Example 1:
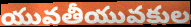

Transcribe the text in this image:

యువతీయువకుల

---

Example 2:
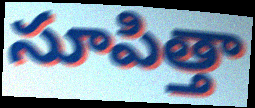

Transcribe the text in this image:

సూపిత్తా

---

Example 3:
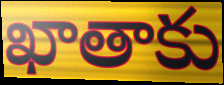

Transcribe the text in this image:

ఖాతాకు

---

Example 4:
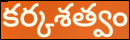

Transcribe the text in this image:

కర్కశత్వం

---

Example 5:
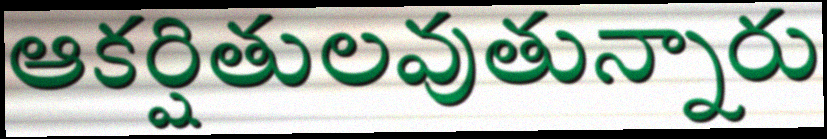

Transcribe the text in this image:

ఆకర్షితులవుతున్నారు